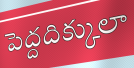
పెద్దదిక్కులా